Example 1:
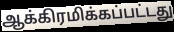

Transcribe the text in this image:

ஆக்கிரமிக்கப்பட்டது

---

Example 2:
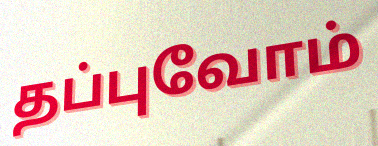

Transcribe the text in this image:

தப்புவோம்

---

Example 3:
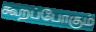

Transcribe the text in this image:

கூறப்போகும்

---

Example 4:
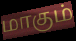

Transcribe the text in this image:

மாகும்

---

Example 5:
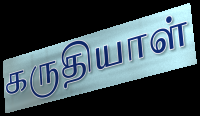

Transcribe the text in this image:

கருதியாள்